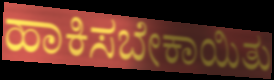
ಹಾಕಿಸಬೇಕಾಯಿತು